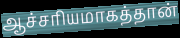
ஆச்சரியமாகத்தான்